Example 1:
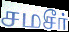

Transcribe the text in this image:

சமசீர்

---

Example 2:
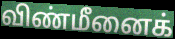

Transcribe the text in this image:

விண்மீனைக்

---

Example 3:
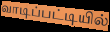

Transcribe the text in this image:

வாடிப்பட்டியில்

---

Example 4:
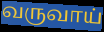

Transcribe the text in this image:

வருவாய்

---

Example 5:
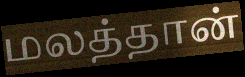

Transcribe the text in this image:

மலத்தான்